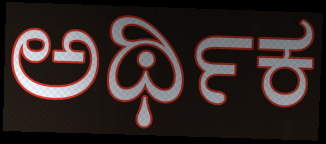
ಅರ್ಥಿಕ